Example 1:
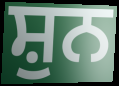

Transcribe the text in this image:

ਸ਼ੁਨ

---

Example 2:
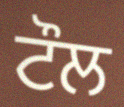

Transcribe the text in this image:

ਟੌਲ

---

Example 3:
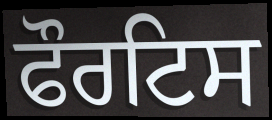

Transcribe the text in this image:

ਫੌਰਟਿਸ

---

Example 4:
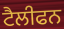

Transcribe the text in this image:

ਟੈਲੀਫਨ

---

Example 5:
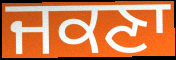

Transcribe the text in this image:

ਜਕਣਾ